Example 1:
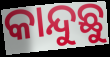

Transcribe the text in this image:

କାନ୍ଦୁଛୁ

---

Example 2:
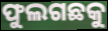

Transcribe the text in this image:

ଫୁଲଗଛକୁ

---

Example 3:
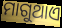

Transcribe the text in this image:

ମାଗୁଥାଏ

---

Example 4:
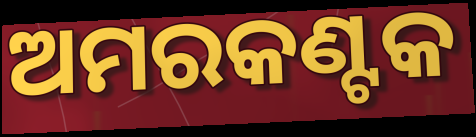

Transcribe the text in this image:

ଅମରକଣ୍ଟକ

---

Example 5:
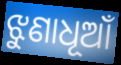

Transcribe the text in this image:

ଝୁଣାଧୂଆଁ